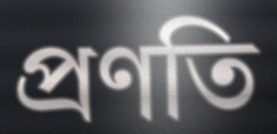
প্রণতি